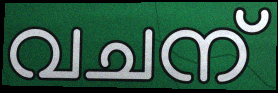
വചന്